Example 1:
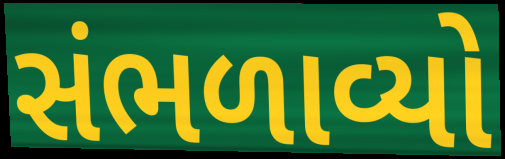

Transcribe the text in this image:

સંભળાવ્યો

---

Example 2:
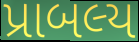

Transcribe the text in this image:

પ્રાબલ્ય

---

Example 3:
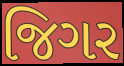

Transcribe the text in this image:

જિગર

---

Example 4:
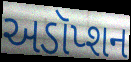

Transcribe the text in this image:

અડૉપ્શન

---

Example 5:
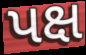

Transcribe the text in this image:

પક્ષ